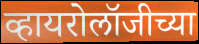
व्हायरोलॉजीच्या